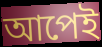
আপেই